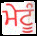
ਮੇਟੂੰ